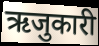
ऋजुकारी